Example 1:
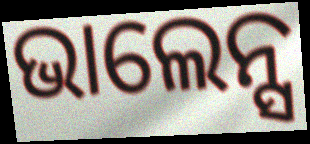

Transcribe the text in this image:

ଭାଲେନ୍ସ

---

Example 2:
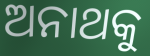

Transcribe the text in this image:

ଅନାଥକୁ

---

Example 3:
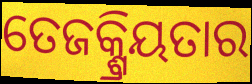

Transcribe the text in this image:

ତେଜକ୍ଶ୍ରିୟତାର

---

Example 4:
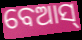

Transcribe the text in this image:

ବେଆସ୍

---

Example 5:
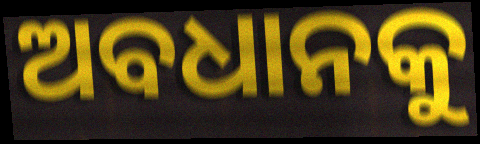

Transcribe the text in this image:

ଅବଧାନକୁ